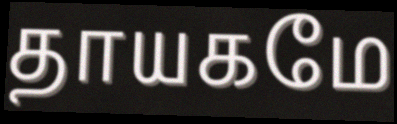
தாயகமே